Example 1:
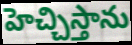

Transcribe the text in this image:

హెచ్చిస్తాను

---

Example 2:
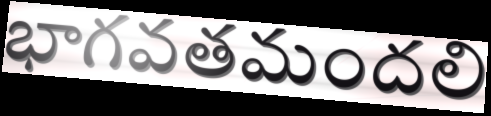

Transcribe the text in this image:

భాగవతమందలి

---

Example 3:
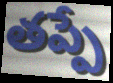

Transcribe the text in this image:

తప్పే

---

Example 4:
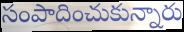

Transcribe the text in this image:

సంపాదించుకున్నారు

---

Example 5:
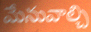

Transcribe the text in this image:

మేనువాల్చి